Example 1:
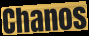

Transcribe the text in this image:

Chanos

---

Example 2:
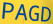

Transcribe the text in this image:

PAGD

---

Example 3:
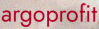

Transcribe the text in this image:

argoprofit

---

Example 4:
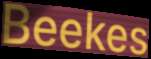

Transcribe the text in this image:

Beekes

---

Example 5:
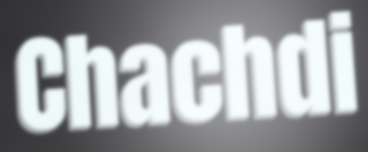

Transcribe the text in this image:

Chachdi